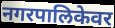
नगरपालिकेवर